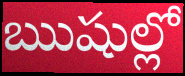
ఋషుల్లో